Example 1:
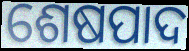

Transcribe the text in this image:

ଶେଷପାଦ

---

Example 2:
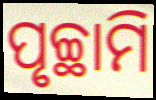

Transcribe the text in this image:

ପୃଚ୍ଛାମି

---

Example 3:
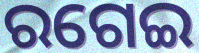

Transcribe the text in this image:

ରଗେଇ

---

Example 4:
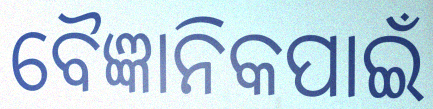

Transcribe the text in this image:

ବୈଜ୍ଞାନିକପାଇଁ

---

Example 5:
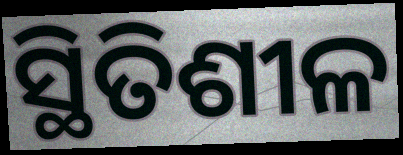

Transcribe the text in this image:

ସ୍ଥିତିଶୀଳ